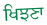
ਖਿਝਣਾ